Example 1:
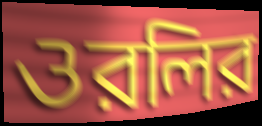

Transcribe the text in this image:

ওরলির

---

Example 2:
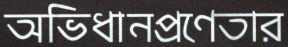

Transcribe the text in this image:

অভিধানপ্রণেতার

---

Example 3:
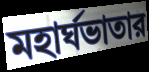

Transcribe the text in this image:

মহার্ঘভাতার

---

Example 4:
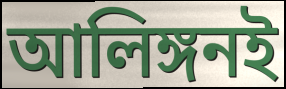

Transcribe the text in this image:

আলিঙ্গনই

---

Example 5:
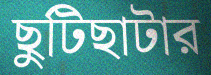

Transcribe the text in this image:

ছুটিছাটার